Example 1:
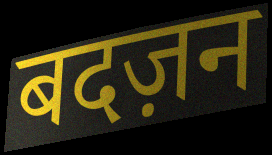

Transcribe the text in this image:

बदज़न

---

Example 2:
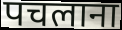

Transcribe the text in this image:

पचलाना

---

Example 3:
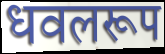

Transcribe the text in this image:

धवलरूप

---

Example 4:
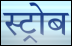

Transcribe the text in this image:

स्ट्रोब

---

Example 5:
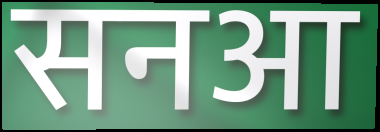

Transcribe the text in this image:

सनआ